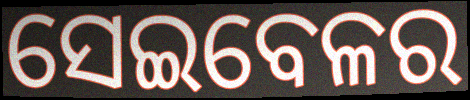
ସେଇବେଳର